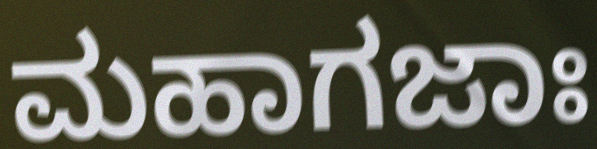
ಮಹಾಗಜಾಃ